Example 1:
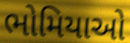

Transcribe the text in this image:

ભોમિયાઓ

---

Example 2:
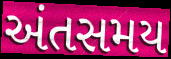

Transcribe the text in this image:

અંતસમય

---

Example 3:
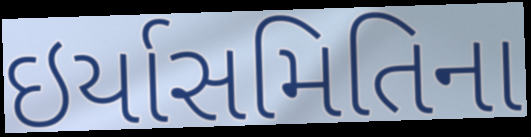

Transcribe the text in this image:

ઇર્યાસમિતિના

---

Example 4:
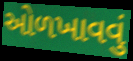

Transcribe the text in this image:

ઓળખાવવું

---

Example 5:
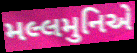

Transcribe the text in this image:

મલ્લમુનિએ